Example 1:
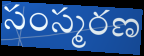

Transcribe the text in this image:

సంస్మరణ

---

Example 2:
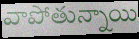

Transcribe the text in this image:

వాపోతున్నాయి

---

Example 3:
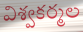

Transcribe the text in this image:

విశ్వకర్మల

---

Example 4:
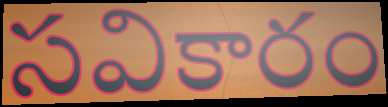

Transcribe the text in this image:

సవికారం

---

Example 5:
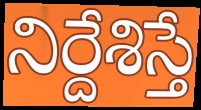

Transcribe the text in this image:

నిర్దేశిస్తే